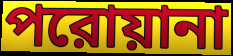
পরোয়ানা